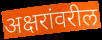
अक्षरांवरील